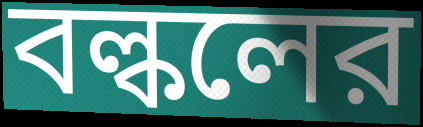
বল্কলের